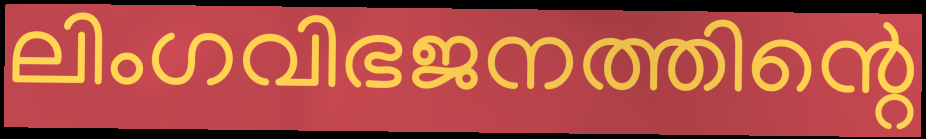
ലിംഗവിഭജനത്തിന്റെ